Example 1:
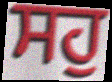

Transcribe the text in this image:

ਸਹੁ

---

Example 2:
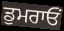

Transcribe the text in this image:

ਡੁਮਰਾਓਂ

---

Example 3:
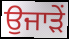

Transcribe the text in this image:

ਉਜਾੜੇਂ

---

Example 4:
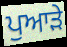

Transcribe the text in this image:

ਪੁਆੜੇ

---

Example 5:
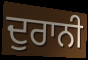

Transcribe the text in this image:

ਦੁਰਾਨੀ